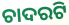
ଚାଦରଟି